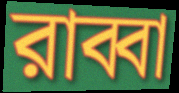
রাব্বা